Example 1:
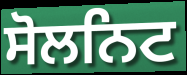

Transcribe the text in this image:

ਸੋਲਨਿਟ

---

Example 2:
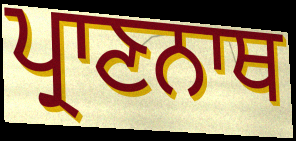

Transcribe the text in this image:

ਪ੍ਰਾਣਨਾਥ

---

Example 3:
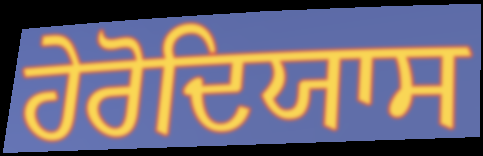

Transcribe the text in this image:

ਹੇਰੋਦਿਯਾਸ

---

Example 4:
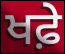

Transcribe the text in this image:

ਖਫ਼ੇ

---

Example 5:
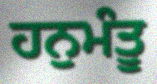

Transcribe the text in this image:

ਹਨੁਮੰਤੂ